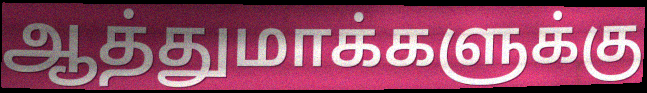
ஆத்துமாக்களுக்கு